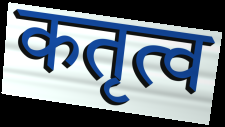
कतृत्व